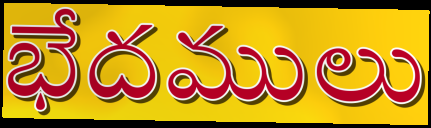
భేదములు